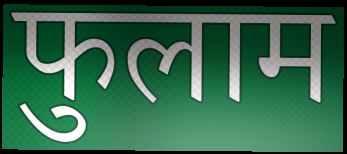
फुलाम